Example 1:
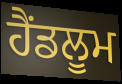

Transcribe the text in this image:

ਹੈਂਡਲੂਮ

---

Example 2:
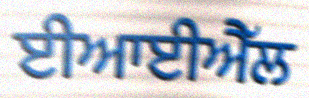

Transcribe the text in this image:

ਈਆਈਐੱਲ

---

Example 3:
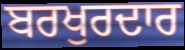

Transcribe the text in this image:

ਬਰਖੁਰਦਾਰ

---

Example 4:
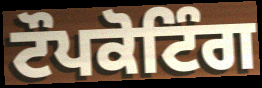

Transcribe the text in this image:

ਟੌਪਕੋਟਿੰਗ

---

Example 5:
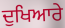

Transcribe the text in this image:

ਦੁਖਿਆਰੇ